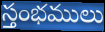
స్తంభములు